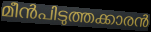
മീൻപിടുത്തക്കാരൻ